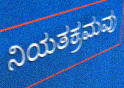
ನಿಯತಕ್ರಮವು